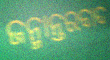
ଜନ୍ମାନ୍ତରବାଦ